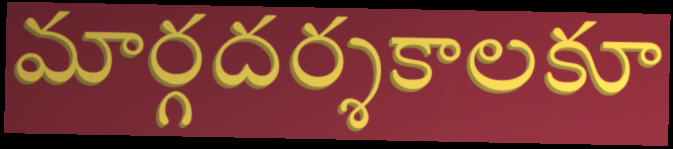
మార్గదర్శకాలకూ